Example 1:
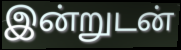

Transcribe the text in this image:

இன்றுடன்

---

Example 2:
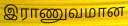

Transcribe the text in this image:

இராணுவமான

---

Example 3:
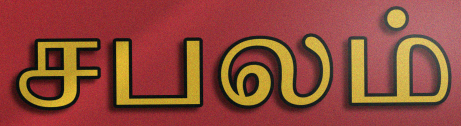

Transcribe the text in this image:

சபலம்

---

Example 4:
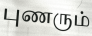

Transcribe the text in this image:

புணரும்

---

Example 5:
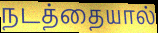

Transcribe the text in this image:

நடத்தையால்